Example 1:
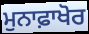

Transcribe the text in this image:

ਮੁਨਾਫ਼ਾਖੋਰ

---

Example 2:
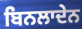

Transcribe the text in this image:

ਬਿਨਲਾਦੇਨ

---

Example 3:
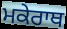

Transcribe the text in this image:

ਮਕੇਰਾਥ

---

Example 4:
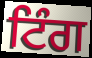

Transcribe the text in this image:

ਟਿੰਗ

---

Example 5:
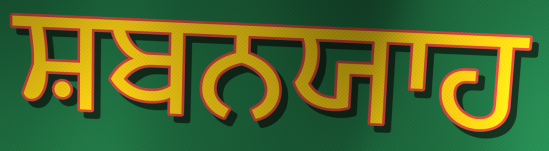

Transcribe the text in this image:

ਸ਼ਬਨਯਾਹ